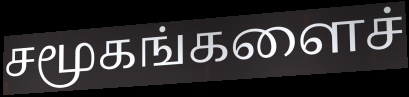
சமூகங்களைச்